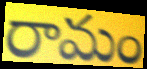
రామం